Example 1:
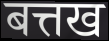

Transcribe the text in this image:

बत्तख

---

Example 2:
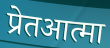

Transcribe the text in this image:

प्रेतआत्मा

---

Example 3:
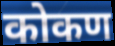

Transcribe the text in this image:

कोकण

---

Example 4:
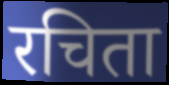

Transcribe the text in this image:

रचिता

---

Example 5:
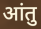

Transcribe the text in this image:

आंतु